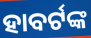
ହାବର୍ଟଙ୍କ